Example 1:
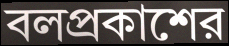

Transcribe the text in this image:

বলপ্রকাশের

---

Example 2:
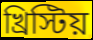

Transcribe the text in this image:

খ্রিস্টিয়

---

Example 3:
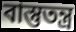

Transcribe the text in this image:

বাস্তুতন্ত্র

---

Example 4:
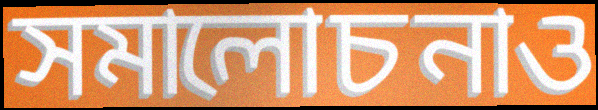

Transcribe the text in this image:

সমালোচনাও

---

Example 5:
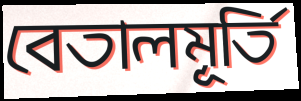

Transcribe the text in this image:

বেতালমূর্তি